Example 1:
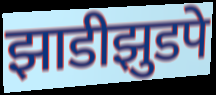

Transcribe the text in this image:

झाडीझुडपे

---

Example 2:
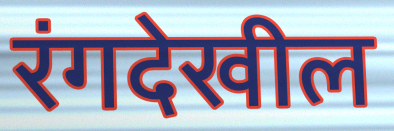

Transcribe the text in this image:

रंगदेखील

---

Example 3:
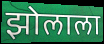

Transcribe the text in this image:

झोलाला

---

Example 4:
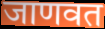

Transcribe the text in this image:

जाणवत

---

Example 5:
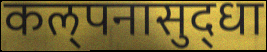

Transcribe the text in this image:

कल्पनासुद्धा